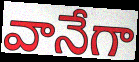
వానేగా